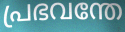
പ്രഭവന്തേ